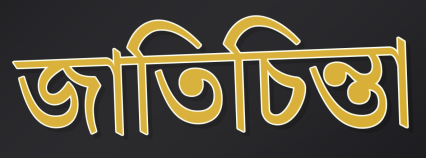
জাতিচিন্তা